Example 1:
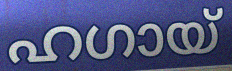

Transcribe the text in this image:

ഹഗായ്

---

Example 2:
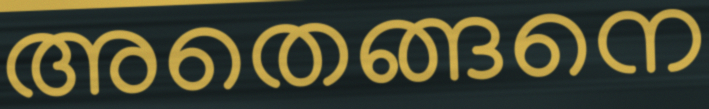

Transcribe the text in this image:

അതെങ്ങനെ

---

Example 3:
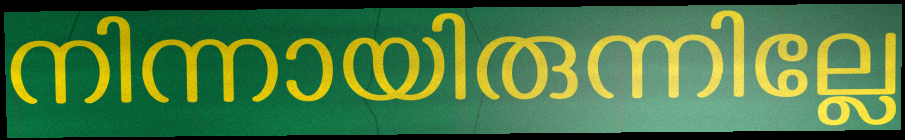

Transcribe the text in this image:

നിന്നായിരുന്നില്ലേ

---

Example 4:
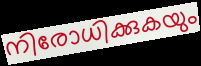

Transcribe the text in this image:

നിരോധിക്കുകയും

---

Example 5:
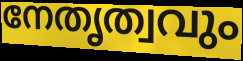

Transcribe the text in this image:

നേതൃത്വവും